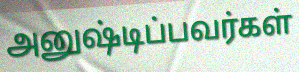
அனுஷ்டிப்பவர்கள்